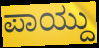
ಪಾಯ್ದು